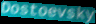
Dostoevsky